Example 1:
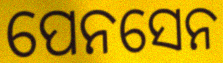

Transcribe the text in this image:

ପେନସେନ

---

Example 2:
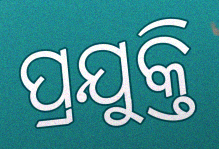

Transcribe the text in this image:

ପ୍ରଯୁକ୍ତି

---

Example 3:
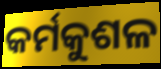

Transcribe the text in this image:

କର୍ମକୁଶଳ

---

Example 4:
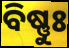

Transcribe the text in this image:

ବିଷ୍ଣୁଃ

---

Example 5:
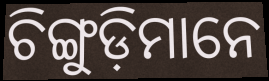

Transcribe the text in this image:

ଚିଙ୍ଗୁଡ଼ିମାନେ